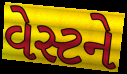
વેસ્ટને